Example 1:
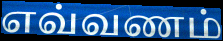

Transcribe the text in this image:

எவ்வணம்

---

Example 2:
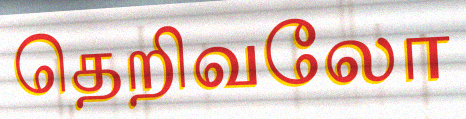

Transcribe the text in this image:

தெறிவலோ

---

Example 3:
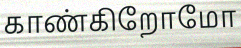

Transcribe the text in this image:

காண்கிறோமோ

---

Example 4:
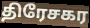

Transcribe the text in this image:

திரேசகர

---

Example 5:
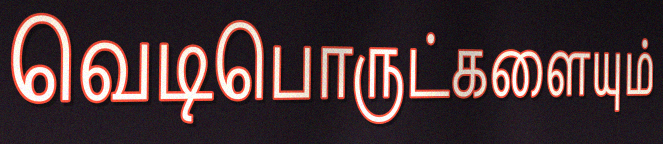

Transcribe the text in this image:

வெடிபொருட்களையும்